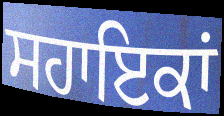
ਸਹਾਇਕਾਂ